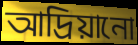
আদ্রিয়ানো